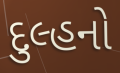
દુલ્હનો